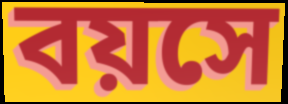
বয়সে